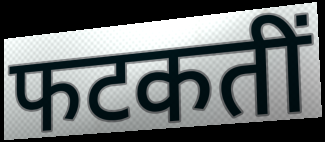
फटकतीं